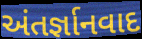
અંતર્જ્ઞાનવાદ